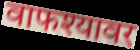
वाफश्यावर